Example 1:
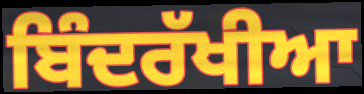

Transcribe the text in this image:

ਬਿੰਦਰੱਖੀਆ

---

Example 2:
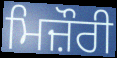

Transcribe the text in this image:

ਮਿਜ਼ੌਰੀ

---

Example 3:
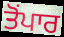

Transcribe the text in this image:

ਤੋਂਪਾਰ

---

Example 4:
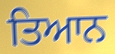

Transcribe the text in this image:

ਤਿਆਨ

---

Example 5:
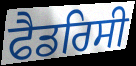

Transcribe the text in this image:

ਫੈਡਰਿਸੀ